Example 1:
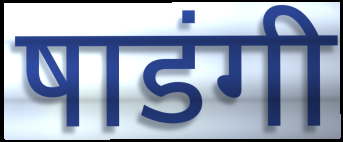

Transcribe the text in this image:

षाडंगी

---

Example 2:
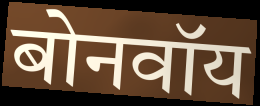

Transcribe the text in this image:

बोनवॉय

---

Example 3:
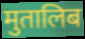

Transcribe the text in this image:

मुतालिब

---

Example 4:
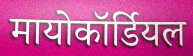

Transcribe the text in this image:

मायोकॉर्डियल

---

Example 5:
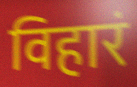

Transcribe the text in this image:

विहारं